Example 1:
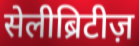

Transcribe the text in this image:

सेलीब्रिटीज़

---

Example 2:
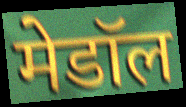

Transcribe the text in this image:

मेडॉल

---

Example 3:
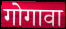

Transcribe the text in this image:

गोगावा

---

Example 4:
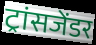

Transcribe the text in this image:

ट्रांसजेंडर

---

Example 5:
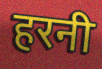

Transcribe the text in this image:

हरनी